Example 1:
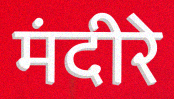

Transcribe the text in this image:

मंदीरे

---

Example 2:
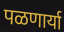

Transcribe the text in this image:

पळणार्या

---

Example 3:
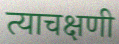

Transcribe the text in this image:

त्याचक्षणी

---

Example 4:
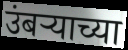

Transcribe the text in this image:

उंबऱ्याच्या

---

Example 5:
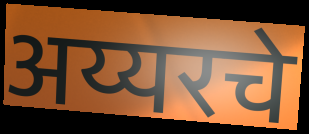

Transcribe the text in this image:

अय्यरचे